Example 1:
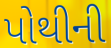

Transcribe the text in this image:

પોથીની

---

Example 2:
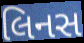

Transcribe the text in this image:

લિનસ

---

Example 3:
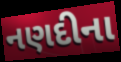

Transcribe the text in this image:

નણદીના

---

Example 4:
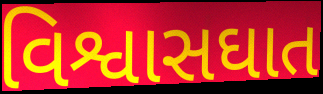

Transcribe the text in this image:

વિશ્વાસઘાત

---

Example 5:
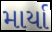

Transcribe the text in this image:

માર્યા